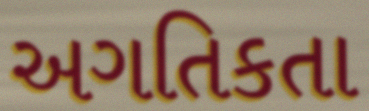
અગતિકતા